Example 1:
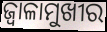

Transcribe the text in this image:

ଜ୍ୱାଳାମୁଖୀର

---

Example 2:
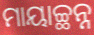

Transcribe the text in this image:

ମାୟାଚ୍ଛନ୍ନ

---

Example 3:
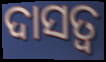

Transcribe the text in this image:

ଦାସତ୍ଵ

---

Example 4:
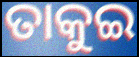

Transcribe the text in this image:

ତାକୁଇ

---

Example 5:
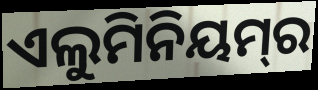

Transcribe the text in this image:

ଏଲୁମିନିୟମ୍‌ର